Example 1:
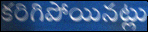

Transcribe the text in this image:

కరిగిపోయినట్లు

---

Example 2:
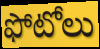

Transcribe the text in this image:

ఫోటోలు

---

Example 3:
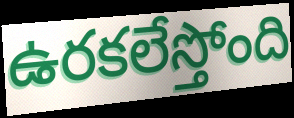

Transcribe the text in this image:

ఉరకలేస్తోంది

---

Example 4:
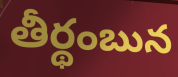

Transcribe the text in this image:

తీర్థంబున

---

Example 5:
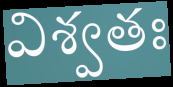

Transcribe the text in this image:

విశ్వతః